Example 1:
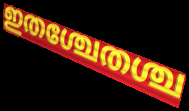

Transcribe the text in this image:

ഇതശ്ചേതശ്ച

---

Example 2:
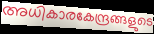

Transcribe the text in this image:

അധികാരകേന്ദ്രങ്ങളുടെ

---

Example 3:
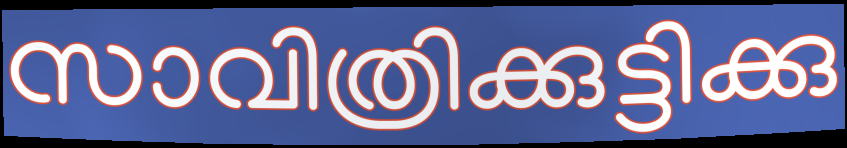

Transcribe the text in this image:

സാവിത്രിക്കുട്ടിക്കു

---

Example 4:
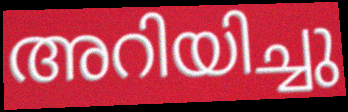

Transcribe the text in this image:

അറിയിച്ചു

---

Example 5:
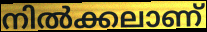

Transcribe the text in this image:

നിൽക്കലാണ്